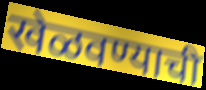
खेळवण्याची